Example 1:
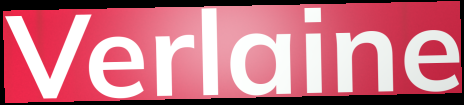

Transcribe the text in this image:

Verlaine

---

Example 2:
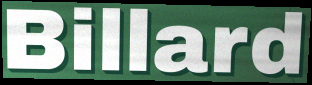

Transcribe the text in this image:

Billard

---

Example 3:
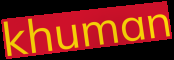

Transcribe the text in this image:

khuman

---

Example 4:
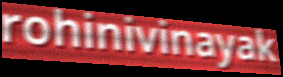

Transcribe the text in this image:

rohinivinayak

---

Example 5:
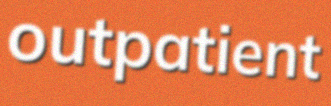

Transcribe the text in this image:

outpatient